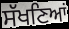
ਸੱਖਣਿਆਂ